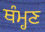
ਥੰਮ੍ਹਣ